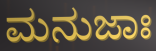
ಮನುಜಾಃ